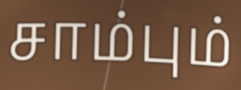
சாம்பும்